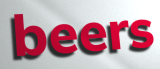
beers